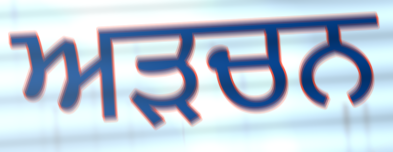
ਅੜਚਨ